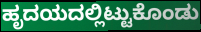
ಹೃದಯದಲ್ಲಿಟ್ಟುಕೊಂಡು